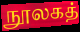
நூலகத்